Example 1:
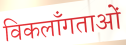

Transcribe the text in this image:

विकलाँगताओं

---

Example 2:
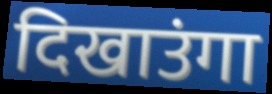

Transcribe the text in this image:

दिखाउंगा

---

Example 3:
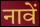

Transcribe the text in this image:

नावें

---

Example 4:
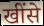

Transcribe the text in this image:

खींसे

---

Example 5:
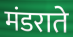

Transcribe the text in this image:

मंडराते